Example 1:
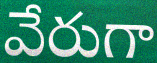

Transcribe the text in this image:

వేరుగా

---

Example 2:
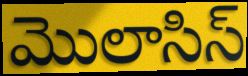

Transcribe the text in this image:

మొలాసిస్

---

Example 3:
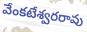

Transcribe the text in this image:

వేంకటేశ్వరరావు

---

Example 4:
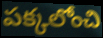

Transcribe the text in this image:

పక్కలోంచి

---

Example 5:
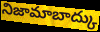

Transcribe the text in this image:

నిజామాబాద్కు